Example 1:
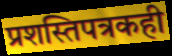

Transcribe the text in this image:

प्रशस्तिपत्रकही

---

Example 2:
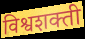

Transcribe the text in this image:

विश्वशक्ती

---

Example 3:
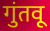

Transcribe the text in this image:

गुंतवू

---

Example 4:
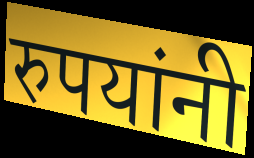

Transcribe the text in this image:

रुपयांनी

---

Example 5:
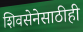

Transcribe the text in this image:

शिवसेनेसाठीही